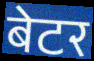
बेटर